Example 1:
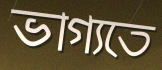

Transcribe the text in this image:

ভাগ্যতে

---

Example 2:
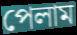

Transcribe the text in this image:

পেলাম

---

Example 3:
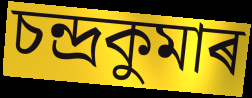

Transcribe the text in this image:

চন্দ্ৰকুমাৰ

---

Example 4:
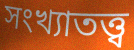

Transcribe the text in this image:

সংখ্যাতত্ত্ব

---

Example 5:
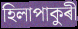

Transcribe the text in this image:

হিলাপাকুৰী